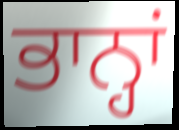
ਭਾਨ੍ਹਾਂ